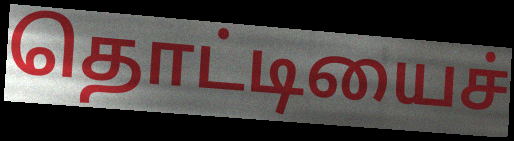
தொட்டியைச்